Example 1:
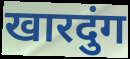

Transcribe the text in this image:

खारदुंग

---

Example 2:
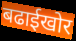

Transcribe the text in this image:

बढाईखोर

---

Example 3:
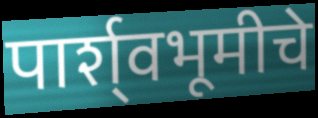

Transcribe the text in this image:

पार्श्वभूमीचे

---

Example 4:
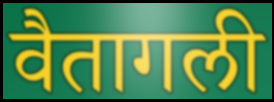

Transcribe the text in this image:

वैतागली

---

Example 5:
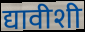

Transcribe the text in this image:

द्यावीशी